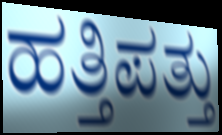
ಹತ್ತಿಪತ್ತು